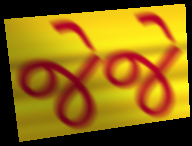
જેજે